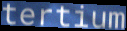
tertium